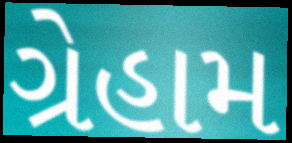
ગ્રેહામ